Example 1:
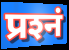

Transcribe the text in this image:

प्रश्‍नं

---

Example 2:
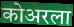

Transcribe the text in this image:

कोअरला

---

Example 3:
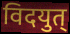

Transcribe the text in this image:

विदयुत्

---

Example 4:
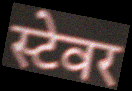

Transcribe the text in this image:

स्टेवर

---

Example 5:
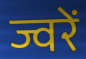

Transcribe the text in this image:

ज्वरें